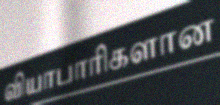
வியாபாரிகளான